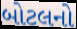
બોટલનો